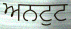
ਅਨਟੁਟ